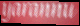
yarannu